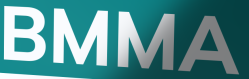
BMMA